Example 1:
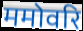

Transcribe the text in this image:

ममोवरि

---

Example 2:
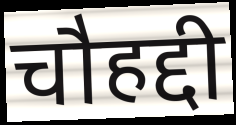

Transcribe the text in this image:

चौहद्दी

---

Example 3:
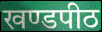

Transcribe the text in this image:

खण्डपीठ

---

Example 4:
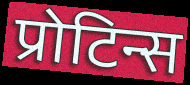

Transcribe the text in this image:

प्रोटिन्स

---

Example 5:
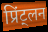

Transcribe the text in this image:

प्रिंट्लन